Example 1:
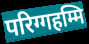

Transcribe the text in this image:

परिग्गहम्मि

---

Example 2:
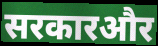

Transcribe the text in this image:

सरकारऔर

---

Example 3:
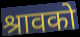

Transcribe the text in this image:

श्रावको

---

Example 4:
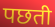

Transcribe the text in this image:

पछती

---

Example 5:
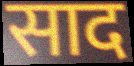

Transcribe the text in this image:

साद